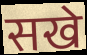
सखे